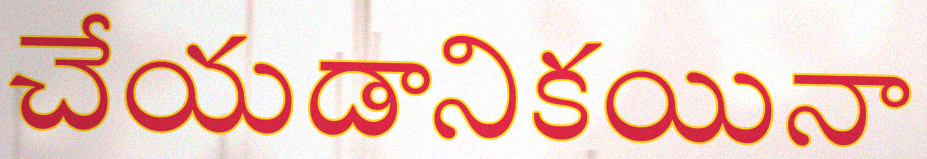
చేయడానికయినా